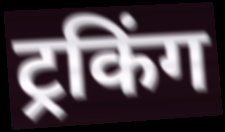
ट्रकिंग